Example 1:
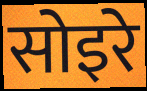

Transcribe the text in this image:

सोइरे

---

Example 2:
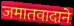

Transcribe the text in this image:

जमातवादाने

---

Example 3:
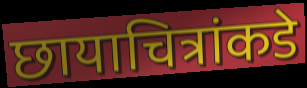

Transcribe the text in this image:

छायाचित्रांकडे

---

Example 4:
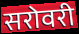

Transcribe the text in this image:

सरोवरी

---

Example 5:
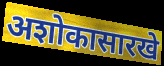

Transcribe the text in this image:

अशोकासारखे